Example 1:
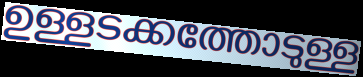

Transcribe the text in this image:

ഉള്ളടക്കത്തോടുള്ള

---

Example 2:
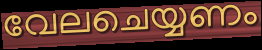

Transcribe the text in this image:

വേലചെയ്യണം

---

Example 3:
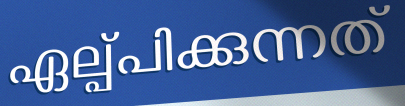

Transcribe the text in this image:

ഏല്പ്പിക്കുന്നത്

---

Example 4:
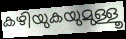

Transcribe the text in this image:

കഴിയുകയുമുള്ളൂ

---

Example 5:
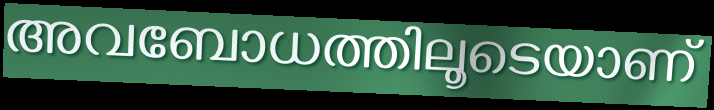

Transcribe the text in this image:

അവബോധത്തിലൂടെയാണ്